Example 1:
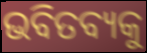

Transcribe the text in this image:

ଭବିତବ୍ୟକୁ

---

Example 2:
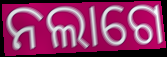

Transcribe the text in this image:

ନଲାଗେ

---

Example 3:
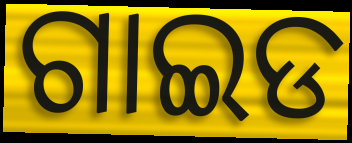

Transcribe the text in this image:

ଗାଇଡ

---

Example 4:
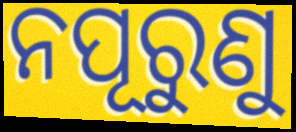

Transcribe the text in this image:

ନପୂରୁଣୁ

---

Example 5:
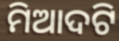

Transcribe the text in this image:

ମିଆଦଟି